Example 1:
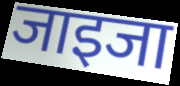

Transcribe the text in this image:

जाइजा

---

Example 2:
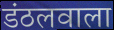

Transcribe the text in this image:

डंठलवाला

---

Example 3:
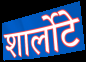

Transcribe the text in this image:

शार्लोटे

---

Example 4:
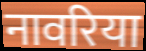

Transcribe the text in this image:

नावरिया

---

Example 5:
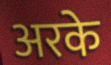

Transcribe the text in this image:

अरके